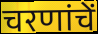
चरणांचें